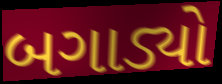
બગાડ્યો